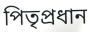
পিতৃপ্রধান